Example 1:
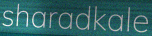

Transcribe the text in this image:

sharadkale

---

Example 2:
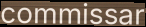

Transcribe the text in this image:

commissar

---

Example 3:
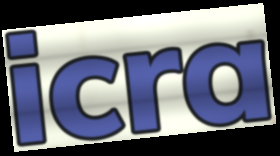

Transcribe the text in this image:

icra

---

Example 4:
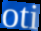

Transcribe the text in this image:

oti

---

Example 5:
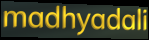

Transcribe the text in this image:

madhyadali